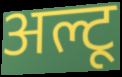
अल्टू